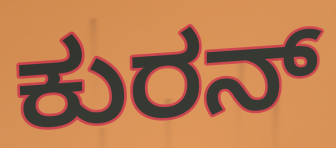
ಕುರನ್